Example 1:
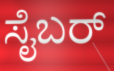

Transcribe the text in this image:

ಸೈಬರ್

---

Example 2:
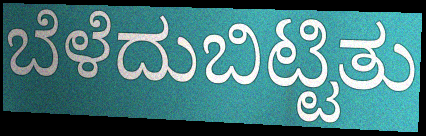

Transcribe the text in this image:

ಬೆಳೆದುಬಿಟ್ಟಿತು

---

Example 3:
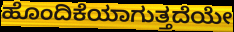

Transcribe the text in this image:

ಹೊಂದಿಕೆಯಾಗುತ್ತದೆಯೇ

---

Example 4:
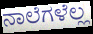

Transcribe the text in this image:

ನಾಲೆಗಳೆಲ್ಲ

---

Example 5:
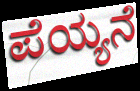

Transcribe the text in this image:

ಪೆಯ್ಯನೆ